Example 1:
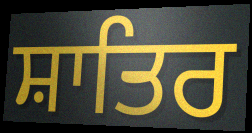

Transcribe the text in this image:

ਸ਼ਾਤਿਰ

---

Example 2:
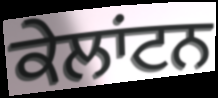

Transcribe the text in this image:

ਕੇਲਾਂਟਨ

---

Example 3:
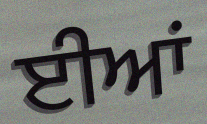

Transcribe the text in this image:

ਈਆਂ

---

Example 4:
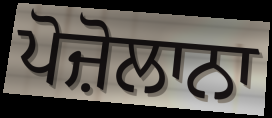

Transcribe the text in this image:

ਪੋਜ਼ੋਲਾਨਾ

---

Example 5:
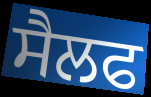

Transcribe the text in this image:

ਸੈਲਫ